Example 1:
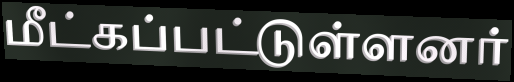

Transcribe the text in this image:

மீட்கப்பட்டுள்ளனர்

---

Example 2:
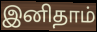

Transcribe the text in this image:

இனிதாம்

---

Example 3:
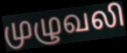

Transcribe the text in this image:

முழுவலி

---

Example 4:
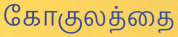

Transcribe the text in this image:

கோகுலத்தை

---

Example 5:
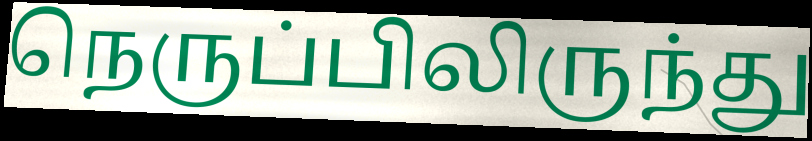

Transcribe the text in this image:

நெருப்பிலிருந்து